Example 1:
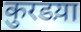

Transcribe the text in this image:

कुरडय़ा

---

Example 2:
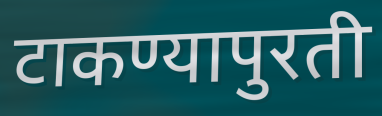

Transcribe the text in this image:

टाकण्यापुरती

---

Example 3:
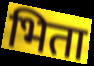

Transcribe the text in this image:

भिता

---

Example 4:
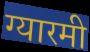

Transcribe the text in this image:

ग्यारमी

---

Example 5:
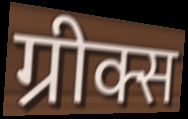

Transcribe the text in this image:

ग्रीक्स